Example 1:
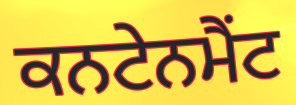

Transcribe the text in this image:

ਕਨਟੇਨਮੈਂਟ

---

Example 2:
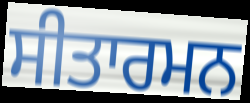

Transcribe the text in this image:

ਸੀਤਾਰਮਨ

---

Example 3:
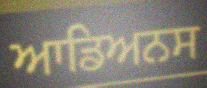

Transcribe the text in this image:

ਆਡਿਅਨਸ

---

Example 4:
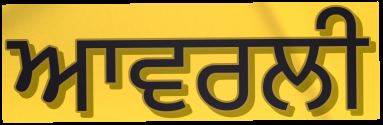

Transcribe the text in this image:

ਆਵਰਲੀ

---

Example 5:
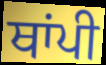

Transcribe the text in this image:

ਥਾਂਪੀ